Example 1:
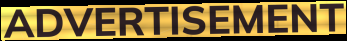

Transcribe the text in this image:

ADVERTISEMENT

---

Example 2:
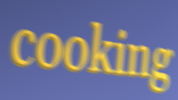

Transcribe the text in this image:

cooking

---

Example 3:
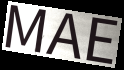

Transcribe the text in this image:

MAE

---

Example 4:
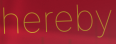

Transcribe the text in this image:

hereby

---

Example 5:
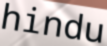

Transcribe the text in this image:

hindu